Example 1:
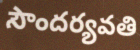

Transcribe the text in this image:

సౌందర్యవతి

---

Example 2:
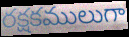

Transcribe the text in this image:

రక్షకములుగా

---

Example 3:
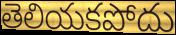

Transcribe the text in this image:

తెలియకపోదు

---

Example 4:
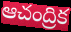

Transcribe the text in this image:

ఆచంద్రిక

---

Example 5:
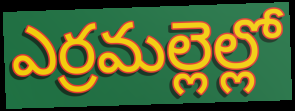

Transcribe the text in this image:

ఎర్రమల్లెల్లో